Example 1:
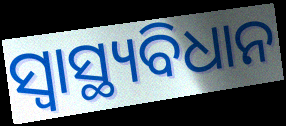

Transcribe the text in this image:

ସ୍ୱାସ୍ଥ୍ୟବିଧାନ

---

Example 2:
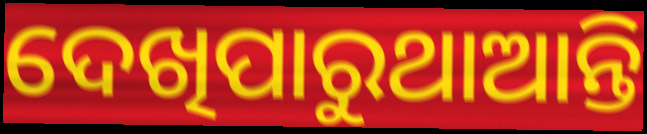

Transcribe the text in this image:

ଦେଖିପାରୁଥାଆନ୍ତି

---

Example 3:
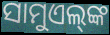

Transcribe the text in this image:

ସାମୁଏଲ୍‌ଙ୍କ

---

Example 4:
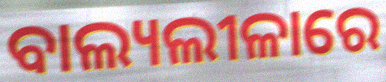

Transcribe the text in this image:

ବାଲ୍ୟଲୀଳାରେ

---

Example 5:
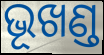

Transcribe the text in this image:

ଭୂଖଣ୍ଡ